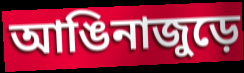
আঙিনাজুড়ে